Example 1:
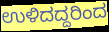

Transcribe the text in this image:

ಉಳಿದದ್ದರಿಂದ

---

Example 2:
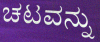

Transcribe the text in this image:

ಚಟವನ್ನು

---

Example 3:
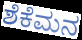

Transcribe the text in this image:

ಶೆಕೆಮನ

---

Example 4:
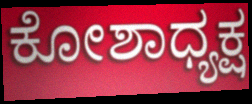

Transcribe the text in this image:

ಕೋಶಾಧ್ಯಕ್ಷ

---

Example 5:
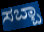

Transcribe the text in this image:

ಸಬ್ಬಾ